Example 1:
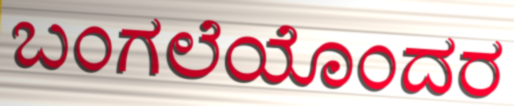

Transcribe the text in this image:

ಬಂಗಲೆಯೊಂದರ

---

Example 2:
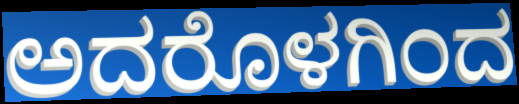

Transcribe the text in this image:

ಅದರೊಳಗಿಂದ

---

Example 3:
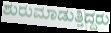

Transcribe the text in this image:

ಶುರುಮಾಡುತ್ತಿದ್ದರು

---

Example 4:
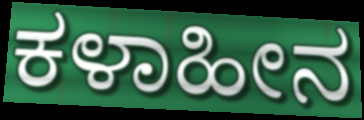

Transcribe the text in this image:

ಕಳಾಹೀನ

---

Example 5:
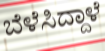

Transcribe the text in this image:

ಬೆಳೆಸಿದ್ದಾಳೆ